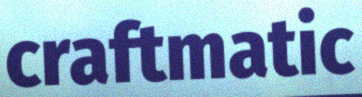
craftmatic